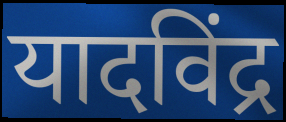
यादविंद्र